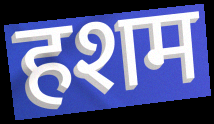
हशम